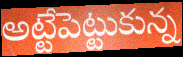
అట్టేపెట్టుకున్న